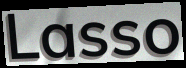
Lasso